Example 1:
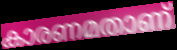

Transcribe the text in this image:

കാരണമതാണ്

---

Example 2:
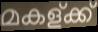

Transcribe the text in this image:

മകള്ക്ക്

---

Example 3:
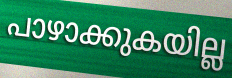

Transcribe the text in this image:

പാഴാക്കുകയില്ല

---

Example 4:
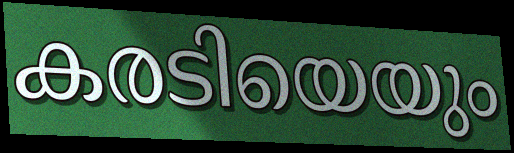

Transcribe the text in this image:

കരടിയെയും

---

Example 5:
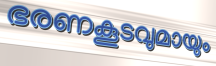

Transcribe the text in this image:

ഭരണകൂടവുമായും